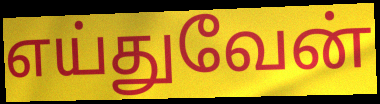
எய்துவேன்